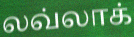
லவ்லாக்